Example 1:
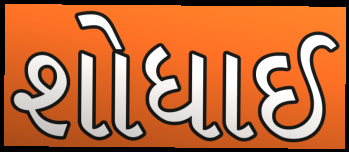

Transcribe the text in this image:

શોધાઈ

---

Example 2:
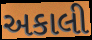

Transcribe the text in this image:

અકાલી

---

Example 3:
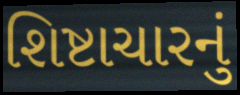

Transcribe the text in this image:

શિષ્ટાચારનું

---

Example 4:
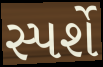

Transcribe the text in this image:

સ્પર્શે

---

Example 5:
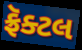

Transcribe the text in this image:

ફ્રૅક્ટલ